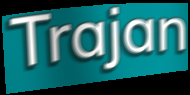
Trajan